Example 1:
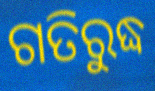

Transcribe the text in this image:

ଗତିରୁଦ୍ଧ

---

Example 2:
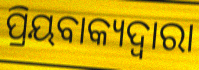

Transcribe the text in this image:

ପ୍ରିୟବାକ୍ୟଦ୍ୱାରା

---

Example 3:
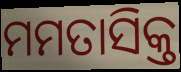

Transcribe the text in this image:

ମମତାସିକ୍ତ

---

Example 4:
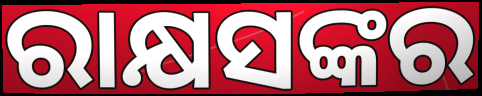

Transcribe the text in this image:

ରାକ୍ଷସଙ୍କର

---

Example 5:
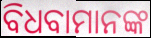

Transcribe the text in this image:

ବିଧବାମାନଙ୍କ